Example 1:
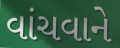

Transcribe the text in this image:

વાંચવાને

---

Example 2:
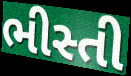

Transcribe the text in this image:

ભીસ્તી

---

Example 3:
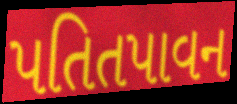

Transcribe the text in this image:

પતિતપાવન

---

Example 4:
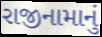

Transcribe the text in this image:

રાજીનામાનું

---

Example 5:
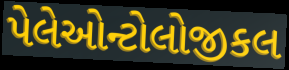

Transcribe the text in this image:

પેલેઓન્ટોલોજીકલ